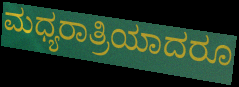
ಮಧ್ಯರಾತ್ರಿಯಾದರೂ